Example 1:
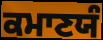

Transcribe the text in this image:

ਕਮਾਣਯੰ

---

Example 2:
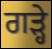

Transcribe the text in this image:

ਗੜ੍ਹੇ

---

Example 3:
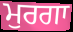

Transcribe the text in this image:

ਮੁਰਗਾ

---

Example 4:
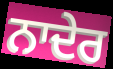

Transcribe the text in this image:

ਨਾਦੇਰ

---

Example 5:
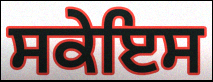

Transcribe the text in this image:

ਸਕੇਇਸ